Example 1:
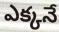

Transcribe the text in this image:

ఎక్కనే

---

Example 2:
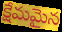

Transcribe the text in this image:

క్షేమమైన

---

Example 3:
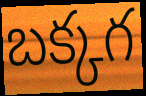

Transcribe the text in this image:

బక్కగ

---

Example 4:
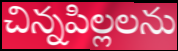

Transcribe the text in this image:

చిన్నపిల్లలను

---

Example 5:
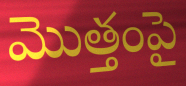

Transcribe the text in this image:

మొత్తంపై